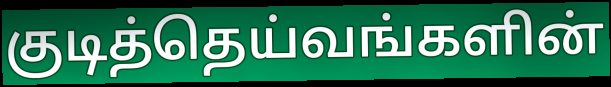
குடித்தெய்வங்களின்